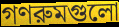
গণরুমগুলো